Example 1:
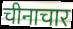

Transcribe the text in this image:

चीनाचार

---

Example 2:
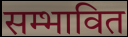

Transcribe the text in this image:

सम्भावित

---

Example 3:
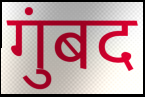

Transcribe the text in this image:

गुंबद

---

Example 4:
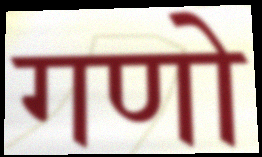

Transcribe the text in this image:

गणो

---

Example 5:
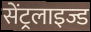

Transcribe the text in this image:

सेंट्रलाइज्ड